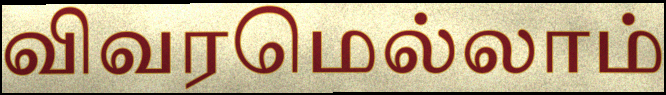
விவரமெல்லாம்